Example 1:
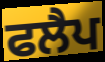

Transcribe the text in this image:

ਫਲੈਪ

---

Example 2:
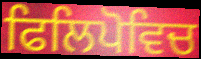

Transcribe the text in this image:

ਫਿਲਿਪੋਵਿਚ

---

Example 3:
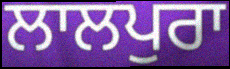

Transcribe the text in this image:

ਲਾਲਪੁਰਾ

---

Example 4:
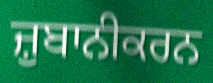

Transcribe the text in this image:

ਜ਼ੁਬਾਨੀਕਰਨ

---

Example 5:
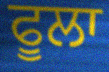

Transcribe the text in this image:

ਫੂਲਾ